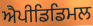
ਐਪੀਡਿਡਿਮਲ